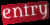
entry